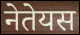
नेतेयस